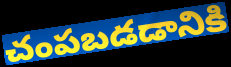
చంపబడడానికి